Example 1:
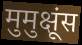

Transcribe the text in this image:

मुमुक्षूंस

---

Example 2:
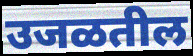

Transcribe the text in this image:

उजळतील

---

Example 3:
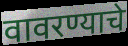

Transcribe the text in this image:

वावरण्याचे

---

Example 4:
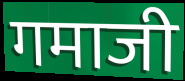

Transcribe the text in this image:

गमाजी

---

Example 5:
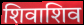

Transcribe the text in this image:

शिवाशिव